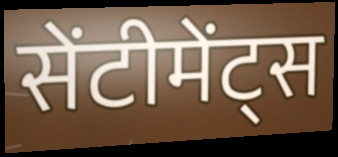
सेंटीमेंट्स